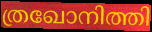
ത്രഖോനിത്തി